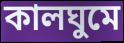
কালঘুমে